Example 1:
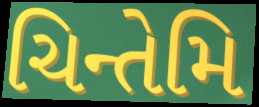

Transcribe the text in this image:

ચિન્તેમિ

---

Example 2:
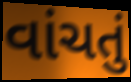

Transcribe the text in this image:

વાંચતું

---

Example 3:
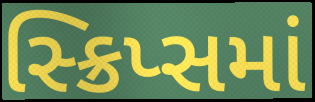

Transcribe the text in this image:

સ્ક્રિપ્સમાં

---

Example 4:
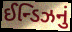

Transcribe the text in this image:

ઈન્ડિઝનું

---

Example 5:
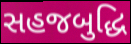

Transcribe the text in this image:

સહજબુદ્ધિ